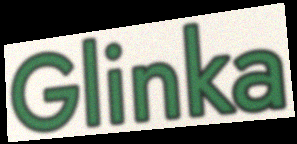
Glinka